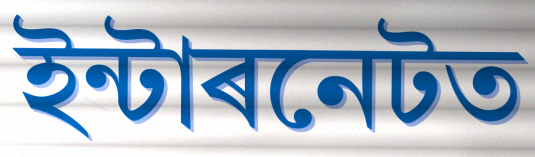
ইন্টাৰনেটত